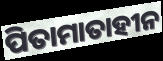
ପିତାମାତାହୀନ